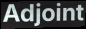
Adjoint